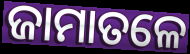
ଜାମାତଳେ